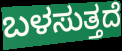
ಬಳಸುತ್ತದೆ